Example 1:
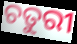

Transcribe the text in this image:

ଚତୁରୀ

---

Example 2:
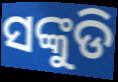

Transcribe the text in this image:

ସଙ୍କୁଡି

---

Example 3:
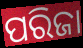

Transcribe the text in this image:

ପରିଜା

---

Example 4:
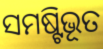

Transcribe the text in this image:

ସମଷ୍ଟିଭୂତ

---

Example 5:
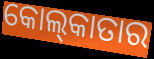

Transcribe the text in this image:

କୋଲ୍‌କାତାର